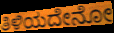
ತಿಳಿಯದೇನೋ